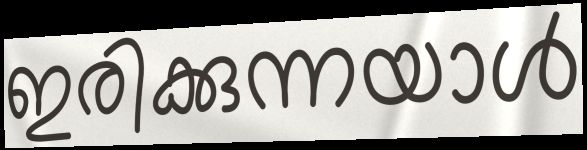
ഇരിക്കുന്നയാൾ